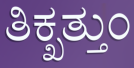
ತಿಕ್ಖತ್ತುಂ